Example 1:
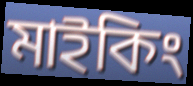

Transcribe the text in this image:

মাইকিং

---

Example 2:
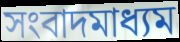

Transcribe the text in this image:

সংবাদমাধ্যম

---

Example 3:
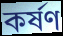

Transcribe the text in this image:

কর্ষণ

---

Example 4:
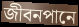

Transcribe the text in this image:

জীবনপানে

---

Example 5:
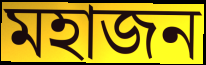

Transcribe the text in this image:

মহাজন